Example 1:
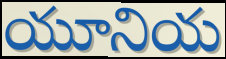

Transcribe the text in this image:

యూనియ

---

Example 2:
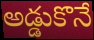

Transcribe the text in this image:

అడ్డుకొనే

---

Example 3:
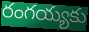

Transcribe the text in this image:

రంగయ్యకు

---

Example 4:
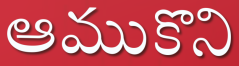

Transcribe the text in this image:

ఆముకొని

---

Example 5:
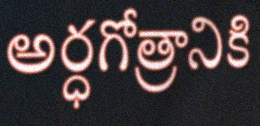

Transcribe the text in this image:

అర్ధగోత్రానికి